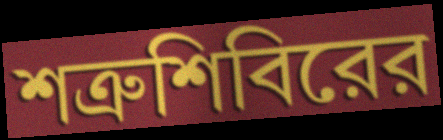
শত্রুশিবিরের